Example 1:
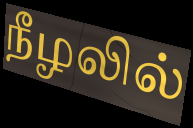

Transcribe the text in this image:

நீழலில்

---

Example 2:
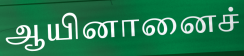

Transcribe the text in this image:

ஆயினானைச்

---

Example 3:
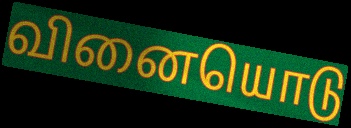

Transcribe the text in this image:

வினையொடு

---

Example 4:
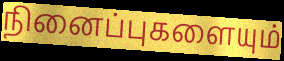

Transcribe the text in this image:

நினைப்புகளையும்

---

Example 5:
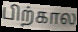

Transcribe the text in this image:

பிற்கால